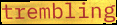
trembling